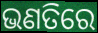
ଭଣତିରେ